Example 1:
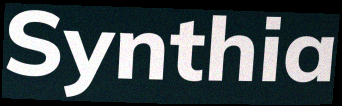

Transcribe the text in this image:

Synthia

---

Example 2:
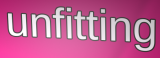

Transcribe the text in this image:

unfitting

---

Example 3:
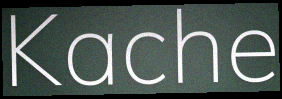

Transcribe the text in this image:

Kache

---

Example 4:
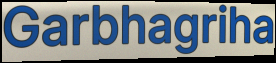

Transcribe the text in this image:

Garbhagriha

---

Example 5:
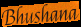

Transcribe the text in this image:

Bhushana